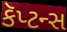
કૅપ્ટન્સ